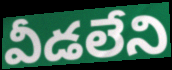
వీడలేని